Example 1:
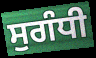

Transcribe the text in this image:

ਸੁਗੰਧੀ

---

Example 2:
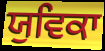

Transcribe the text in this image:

ਯੁਵਿਕਾ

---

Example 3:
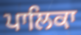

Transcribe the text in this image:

ਪਾਲਿਕਾ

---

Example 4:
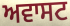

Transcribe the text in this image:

ਅਵਾਸਟ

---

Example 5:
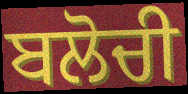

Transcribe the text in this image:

ਬਲੋਚੀ